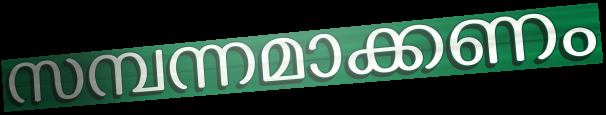
സമ്പന്നമാക്കണം